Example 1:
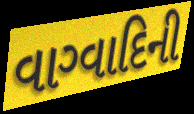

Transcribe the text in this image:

વાગ્વાદિની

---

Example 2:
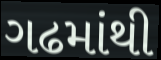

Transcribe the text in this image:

ગઢમાંથી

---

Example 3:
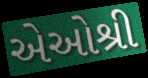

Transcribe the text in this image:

એઓશ્રી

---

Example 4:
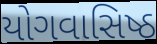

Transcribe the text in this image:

યોગવાસિષ્ઠ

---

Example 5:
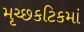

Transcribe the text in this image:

મૃચ્છકટિકમાં